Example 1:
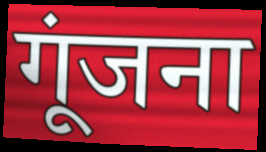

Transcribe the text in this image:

गूंजना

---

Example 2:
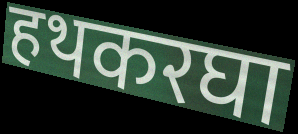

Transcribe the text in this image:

हथकरघा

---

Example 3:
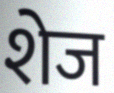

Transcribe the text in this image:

शेज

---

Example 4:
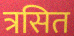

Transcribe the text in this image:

त्रसित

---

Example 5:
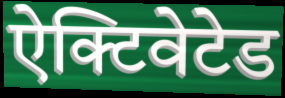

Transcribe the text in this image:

ऐक्टिवेटेड